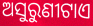
ଅସୁରୁଣୀଟାଏ